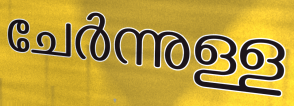
ചേർന്നുള്ള